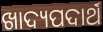
ଖାଦ୍ୟପଦାର୍ଥ